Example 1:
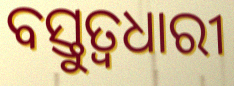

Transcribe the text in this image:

ବସ୍ତୁତ୍ୱଧାରୀ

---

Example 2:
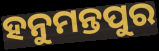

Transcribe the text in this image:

ହନୁମନ୍ତପୁର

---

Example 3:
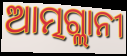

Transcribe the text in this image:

ଆତ୍ମଗ୍ଲାନୀ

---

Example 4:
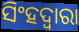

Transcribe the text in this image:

ସିଂହଦ୍ୱାରା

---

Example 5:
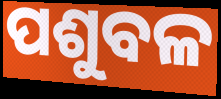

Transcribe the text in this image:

ପଶୁବଳ